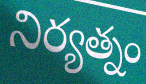
నిర్యత్నం